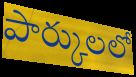
పార్కులలో